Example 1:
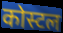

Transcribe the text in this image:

कोस्टल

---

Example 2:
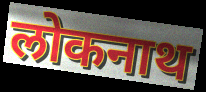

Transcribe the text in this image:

लोकनाथ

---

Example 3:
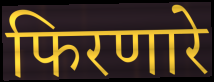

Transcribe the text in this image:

फिरणारे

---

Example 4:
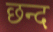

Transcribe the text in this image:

छन्द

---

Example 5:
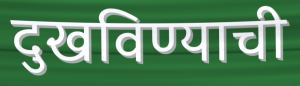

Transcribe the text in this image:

दुखविण्याची